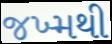
જખ્મથી